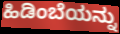
ಹಿಡಿಂಬೆಯನ್ನು